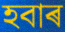
হবাৰ